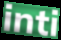
inti